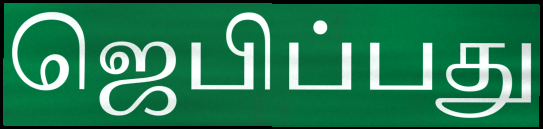
ஜெபிப்பது